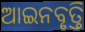
ଆଇନବୃତ୍ତି